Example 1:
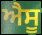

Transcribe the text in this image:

ਐਸੂ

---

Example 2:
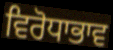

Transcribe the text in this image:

ਵਿਰੋਧਾਭਾਵ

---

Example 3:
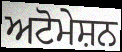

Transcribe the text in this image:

ਅਟੋਮੇਸ਼ਨ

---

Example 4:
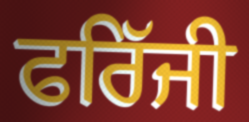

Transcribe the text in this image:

ਫਰਿੱਜੀ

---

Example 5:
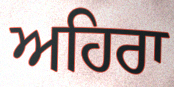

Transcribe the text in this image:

ਅਹਿਰਾ